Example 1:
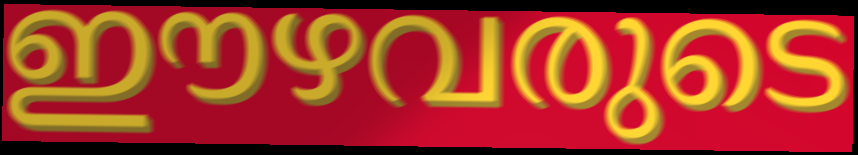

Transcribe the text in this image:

ഈഴവരുടെ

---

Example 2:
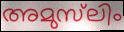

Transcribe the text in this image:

അമുസ്‌ലിം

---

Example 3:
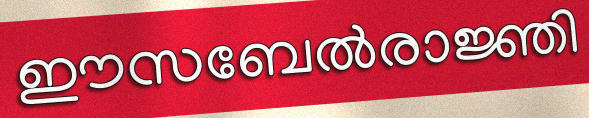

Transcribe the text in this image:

ഈസബേൽരാജ്ഞി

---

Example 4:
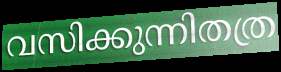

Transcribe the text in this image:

വസിക്കുന്നിതത്ര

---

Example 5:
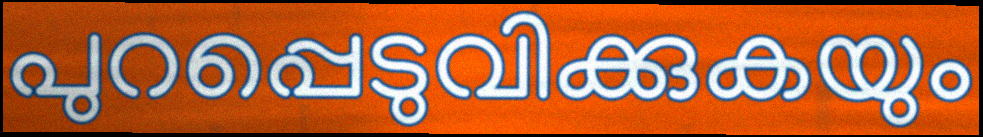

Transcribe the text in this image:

പുറപ്പെടുവിക്കുകയും